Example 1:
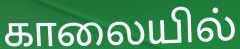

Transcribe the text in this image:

காலையில்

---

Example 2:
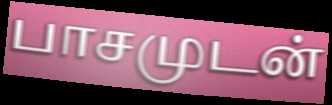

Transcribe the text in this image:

பாசமுடன்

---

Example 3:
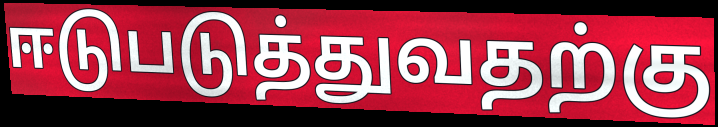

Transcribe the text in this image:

ஈடுபடுத்துவதற்கு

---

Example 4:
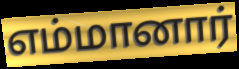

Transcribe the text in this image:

எம்மானார்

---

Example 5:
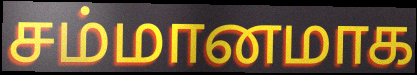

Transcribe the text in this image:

சம்மானமாக